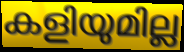
കളിയുമില്ല